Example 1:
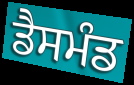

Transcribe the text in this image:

ਡੈਸਮੰਡ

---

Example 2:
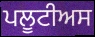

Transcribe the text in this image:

ਪਲੂਟੀਅਸ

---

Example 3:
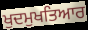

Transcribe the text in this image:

ਖੁਦਮੁਖਤਿਆਰ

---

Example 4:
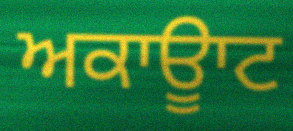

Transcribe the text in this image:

ਅਕਾਊਾਟ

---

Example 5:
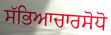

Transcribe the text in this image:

ਸੱਭਿਆਚਾਰਸੋਧੋ